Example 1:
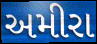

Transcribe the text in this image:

અમીરા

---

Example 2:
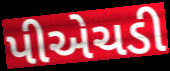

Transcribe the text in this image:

પીએચડી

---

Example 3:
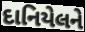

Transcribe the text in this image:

દાનિયેલને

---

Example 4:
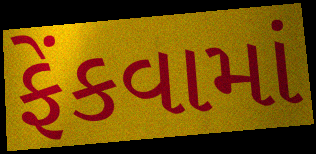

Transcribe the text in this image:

ફેંકવામાં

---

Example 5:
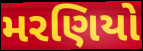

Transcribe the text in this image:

મરણિયો